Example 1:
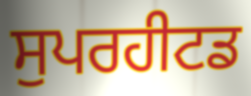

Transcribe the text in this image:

ਸੁਪਰਹੀਟਡ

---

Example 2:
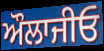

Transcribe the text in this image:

ਔਲਾਜੀਓ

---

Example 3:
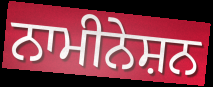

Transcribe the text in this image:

ਨਾਮੀਨੇਸ਼ਨ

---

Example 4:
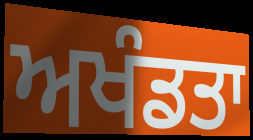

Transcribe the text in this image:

ਅਖੰਡਤਾ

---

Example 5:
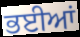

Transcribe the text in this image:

ਭਈਆਂ